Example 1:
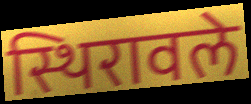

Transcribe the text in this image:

स्थिरावले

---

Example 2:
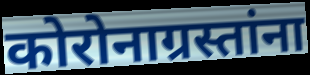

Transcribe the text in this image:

कोरोनाग्रस्तांना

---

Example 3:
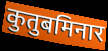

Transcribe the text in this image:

कुतुबमिनार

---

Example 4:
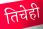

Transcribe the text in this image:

तिचेही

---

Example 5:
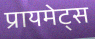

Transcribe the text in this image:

प्रायमेट्स